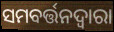
ସମବର୍ତ୍ତନଦ୍ୱାରା